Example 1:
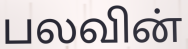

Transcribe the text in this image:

பலவின்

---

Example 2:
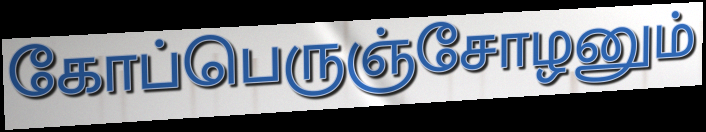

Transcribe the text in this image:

கோப்பெருஞ்சோழனும்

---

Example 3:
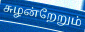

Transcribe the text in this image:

சுழன்றேறும்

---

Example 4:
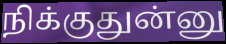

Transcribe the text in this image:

நிக்குதுன்னு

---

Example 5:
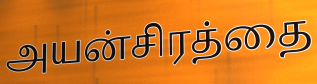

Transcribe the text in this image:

அயன்சிரத்தை